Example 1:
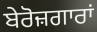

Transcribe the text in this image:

ਬੇਰੋਜ਼ਗਾਰਾਂ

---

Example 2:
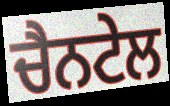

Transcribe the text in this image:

ਚੈਨਟੇਲ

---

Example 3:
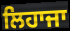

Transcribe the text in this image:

ਲਿਹਾਜਾ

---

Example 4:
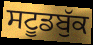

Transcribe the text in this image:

ਸਟੂਡਬੁੱਕ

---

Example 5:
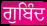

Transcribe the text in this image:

ਗੁਬਿੰਦ